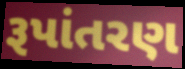
રૂપાંતરણ